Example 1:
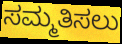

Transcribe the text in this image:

ಸಮ್ಮತಿಸಲು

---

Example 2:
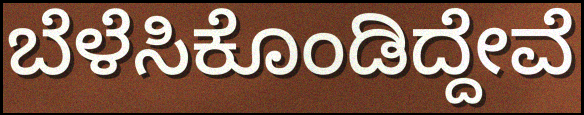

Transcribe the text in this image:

ಬೆಳೆಸಿಕೊಂಡಿದ್ದೇವೆ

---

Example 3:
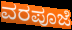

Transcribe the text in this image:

ವರಪೂಜೆ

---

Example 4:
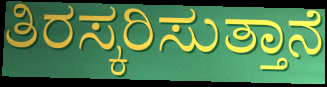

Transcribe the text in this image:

ತಿರಸ್ಕರಿಸುತ್ತಾನೆ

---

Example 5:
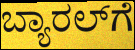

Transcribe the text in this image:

ಬ್ಯಾರಲ್‌ಗೆ